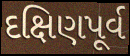
દક્ષિણપૂર્વ